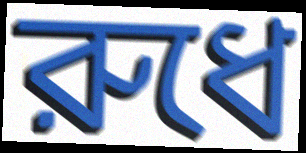
রুধে